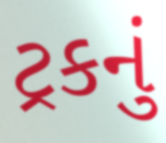
ટ્રકનું